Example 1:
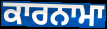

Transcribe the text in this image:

ਕਾਰਨਾਮਾ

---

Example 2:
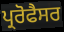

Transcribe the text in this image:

ਪ੍ਰਰੋਫੈਸਰ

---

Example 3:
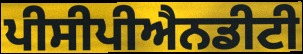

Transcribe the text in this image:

ਪੀਸੀਪੀਐਨਡੀਟੀ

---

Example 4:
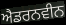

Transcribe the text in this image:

ਐਡਰਨਵੀਨ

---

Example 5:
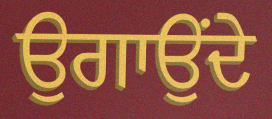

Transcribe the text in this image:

ਉਗਾਉਂਦੇ